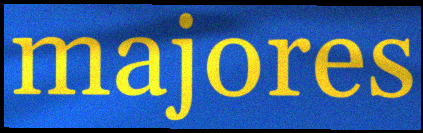
majores